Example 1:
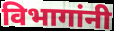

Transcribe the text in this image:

विभागांनी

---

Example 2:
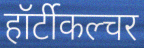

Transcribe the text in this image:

हॉर्टीकल्चर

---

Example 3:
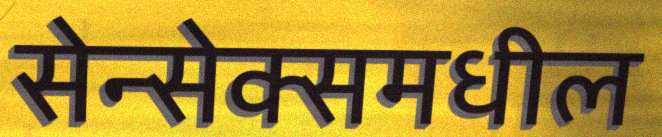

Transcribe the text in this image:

सेन्सेक्समधील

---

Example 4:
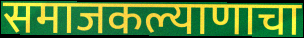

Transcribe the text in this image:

समाजकल्याणाचा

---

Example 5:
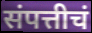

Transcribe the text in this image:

संपत्तीचं